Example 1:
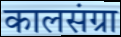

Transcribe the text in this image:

कालसंग्रा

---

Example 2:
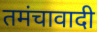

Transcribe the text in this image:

तमंचावादी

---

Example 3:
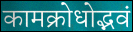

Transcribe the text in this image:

कामक्रोधोद्भवं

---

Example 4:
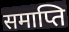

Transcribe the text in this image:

समाप्ति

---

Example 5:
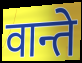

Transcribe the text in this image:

वान्ते